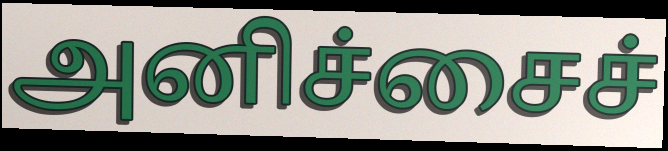
அனிச்சைச்